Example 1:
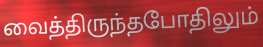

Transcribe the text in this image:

வைத்திருந்தபோதிலும்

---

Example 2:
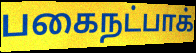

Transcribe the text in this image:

பகைநட்பாக்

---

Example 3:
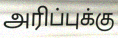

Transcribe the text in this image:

அரிப்புக்கு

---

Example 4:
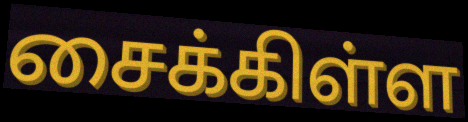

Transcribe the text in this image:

சைக்கிள்ள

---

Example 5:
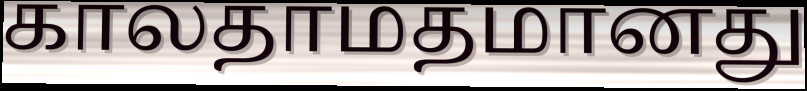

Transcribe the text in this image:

காலதாமதமானது